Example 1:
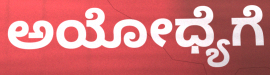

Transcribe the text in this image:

ಅಯೋಧ್ಯೆಗೆ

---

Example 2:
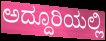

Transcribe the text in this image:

ಅದ್ದೂರಿಯಲ್ಲಿ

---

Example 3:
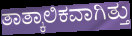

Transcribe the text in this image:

ತಾತ್ಕಾಲಿಕವಾಗಿತ್ತು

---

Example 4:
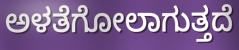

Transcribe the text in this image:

ಅಳತೆಗೋಲಾಗುತ್ತದೆ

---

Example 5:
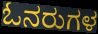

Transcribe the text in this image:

ಓನರುಗಳ